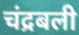
चंद्रबली